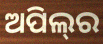
ଅପିଲ୍‌ର